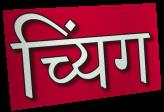
च्यिंग